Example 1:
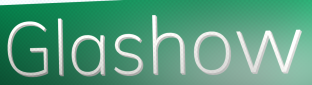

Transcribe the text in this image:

Glashow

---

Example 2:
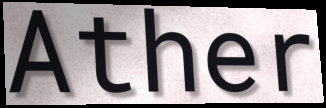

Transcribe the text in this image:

Ather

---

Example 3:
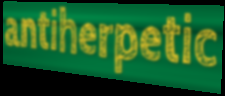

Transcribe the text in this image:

antiherpetic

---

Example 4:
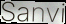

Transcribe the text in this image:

Sanvi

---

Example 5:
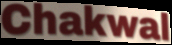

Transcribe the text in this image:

Chakwal